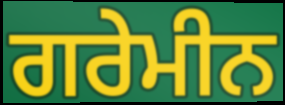
ਗਰੇਮੀਨ